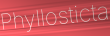
Phyllosticta